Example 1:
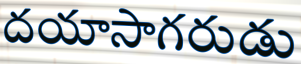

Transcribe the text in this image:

దయాసాగరుడు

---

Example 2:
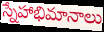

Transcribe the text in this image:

స్నేహాభిమానాలు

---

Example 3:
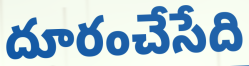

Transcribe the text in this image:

దూరంచేసేది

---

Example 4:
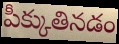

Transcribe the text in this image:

పీక్కుతినడం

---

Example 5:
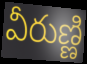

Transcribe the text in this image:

వీరుణ్ణి